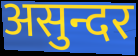
असुन्दर